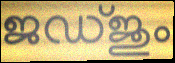
ജഡ്ജും